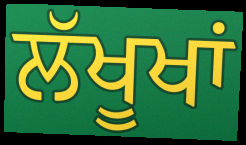
ਲੱਖੂਖਾਂ